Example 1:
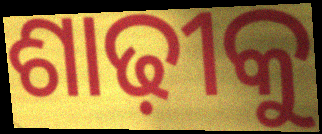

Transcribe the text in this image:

ଶାଢ଼ୀକୁ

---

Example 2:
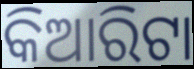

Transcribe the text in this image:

କିଆରିଟା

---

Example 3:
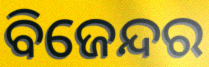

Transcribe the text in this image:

ବିଜେନ୍ଦର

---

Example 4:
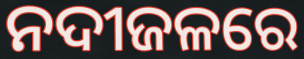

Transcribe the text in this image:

ନଦୀଜଳରେ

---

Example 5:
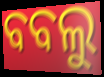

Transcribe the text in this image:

ବବଲୁ